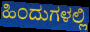
ಹಿಂದುಗಳಲ್ಲಿ